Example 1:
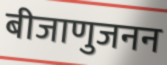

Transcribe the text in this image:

बीजाणुजनन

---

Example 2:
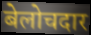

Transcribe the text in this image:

बेलोचदार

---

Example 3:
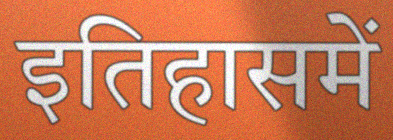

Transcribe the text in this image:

इतिहासमें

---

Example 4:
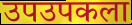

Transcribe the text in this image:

उपउपकला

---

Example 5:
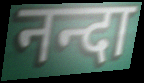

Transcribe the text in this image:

नन्दा